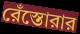
রেঁস্তোরার